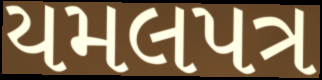
યમલપત્ર